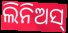
ଲିନିଅସ୍